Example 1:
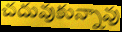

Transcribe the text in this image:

చదువుకున్నావు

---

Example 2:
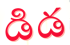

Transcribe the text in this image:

డిడ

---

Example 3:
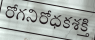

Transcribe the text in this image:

రోగనిరోధకశక్తి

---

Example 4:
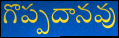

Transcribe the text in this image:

గొప్పదానవు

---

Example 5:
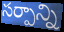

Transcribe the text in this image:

సర్పాన్ని